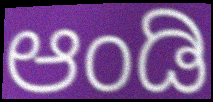
ಆಂಡಿ